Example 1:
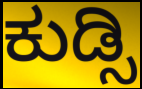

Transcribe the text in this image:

ಕುಡ್ಸಿ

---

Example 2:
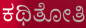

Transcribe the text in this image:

ಕಥಿತೋತಿ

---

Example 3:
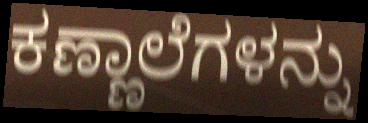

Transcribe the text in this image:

ಕಣ್ಣಾಲೆಗಳನ್ನು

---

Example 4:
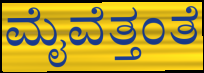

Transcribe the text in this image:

ಮೈವೆತ್ತಂತೆ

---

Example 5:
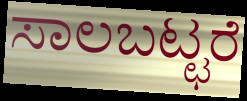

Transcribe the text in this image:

ಸಾಲಬಟ್ಟರೆ